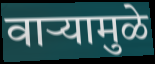
वाऱ्यामुळे